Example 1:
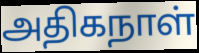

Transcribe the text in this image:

அதிகநாள்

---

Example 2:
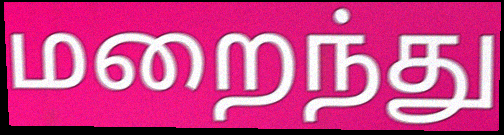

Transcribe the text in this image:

மறைந்து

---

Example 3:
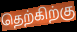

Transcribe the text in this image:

தெற்கிற்கு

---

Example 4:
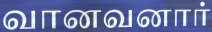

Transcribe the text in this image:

வானவனார்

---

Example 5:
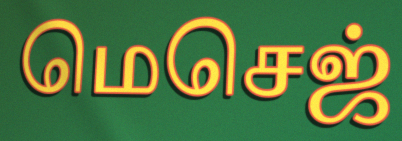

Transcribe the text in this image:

மெசெஜ்